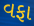
વફા